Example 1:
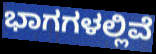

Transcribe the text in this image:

ಭಾಗಗಳಲ್ಲಿವೆ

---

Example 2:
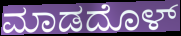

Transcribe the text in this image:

ಮಾಡದೊಳ್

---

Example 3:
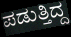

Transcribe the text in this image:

ಪಡುತ್ತಿದ್ದ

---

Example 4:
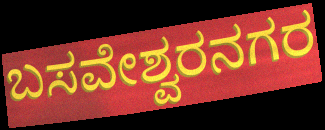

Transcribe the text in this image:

ಬಸವೇಶ್ವರನಗರ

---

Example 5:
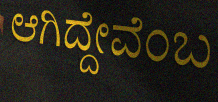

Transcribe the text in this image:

ಆಗಿದ್ದೇವೆಂಬ